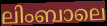
ലിംബാലെ